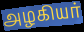
அழகியர்